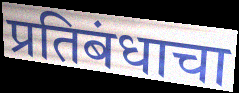
प्रतिबंधाचा